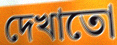
দেখাতো